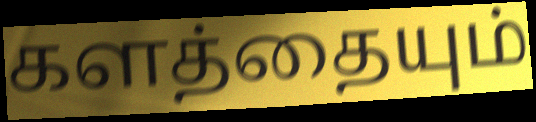
களத்தையும்